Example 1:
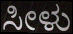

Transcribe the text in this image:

ಸೀಳು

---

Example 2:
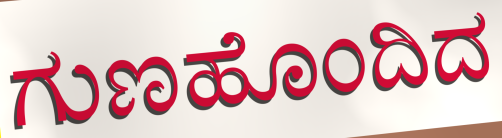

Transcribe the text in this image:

ಗುಣಹೊಂದಿದ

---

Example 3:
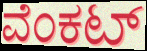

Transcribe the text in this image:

ವೆಂಕಟ್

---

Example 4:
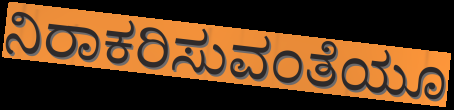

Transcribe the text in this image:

ನಿರಾಕರಿಸುವಂತೆಯೂ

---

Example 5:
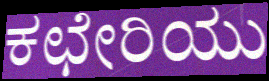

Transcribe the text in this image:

ಕಛೇರಿಯು